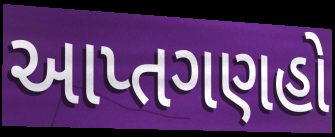
આપ્તગણહો